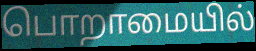
பொறாமையில்